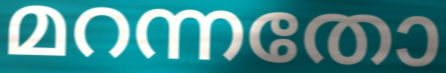
മറന്നതോ